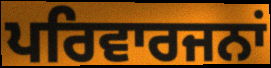
ਪਰਿਵਾਰਜਨਾਂ